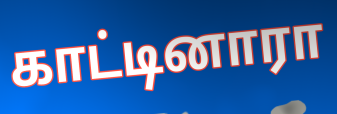
காட்டினாரா